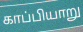
காப்பியாறு